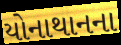
યોનાથાનના